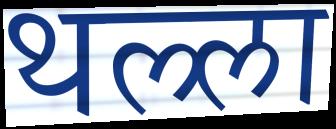
थल्ला